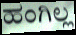
ಹಂಗಿಲ್ಲ